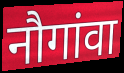
नौगांवा